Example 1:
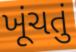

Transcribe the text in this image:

ખૂંચતું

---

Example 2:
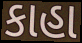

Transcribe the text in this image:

કાહા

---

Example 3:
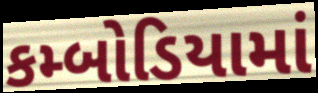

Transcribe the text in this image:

કમ્બોડિયામાં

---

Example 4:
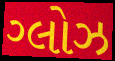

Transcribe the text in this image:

ગ્લોઝ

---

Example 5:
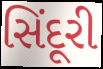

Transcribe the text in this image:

સિંદૂરી